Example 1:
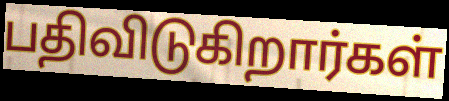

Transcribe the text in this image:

பதிவிடுகிறார்கள்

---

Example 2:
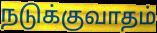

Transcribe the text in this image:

நடுக்குவாதம்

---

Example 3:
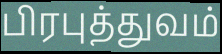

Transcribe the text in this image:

பிரபுத்துவம்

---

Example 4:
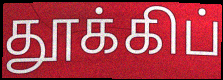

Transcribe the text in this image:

தூக்கிப்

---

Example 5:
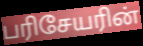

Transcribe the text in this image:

பரிசேயரின்